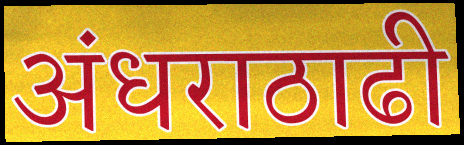
अंधराठाढी